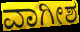
ವಾಗೀಶ